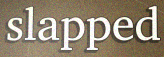
slapped